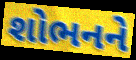
શોભનને